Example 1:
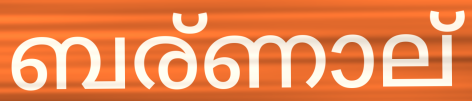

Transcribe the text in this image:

ബര്ണാല്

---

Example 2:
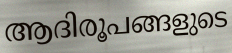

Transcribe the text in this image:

ആദിരൂപങ്ങളുടെ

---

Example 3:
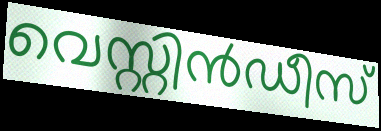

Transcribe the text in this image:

വെസ്റ്റിൻഡീസ്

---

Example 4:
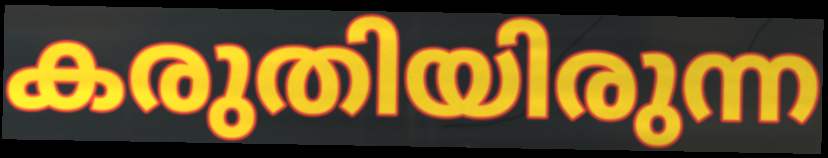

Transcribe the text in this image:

കരുതിയിരുന്ന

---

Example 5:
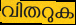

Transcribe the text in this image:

വിതറുക